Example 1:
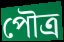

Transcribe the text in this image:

পৌত্র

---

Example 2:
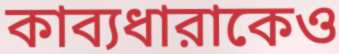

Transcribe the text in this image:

কাব্যধারাকেও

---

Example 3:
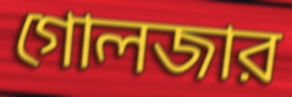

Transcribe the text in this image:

গোলজার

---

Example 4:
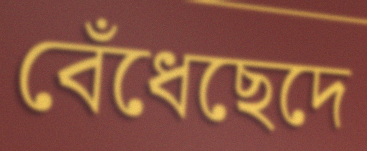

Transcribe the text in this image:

বেঁধেছেদে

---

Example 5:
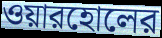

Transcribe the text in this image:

ওয়ারহোলের